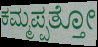
ಕಮ್ಮಪ್ಪತ್ತೋ